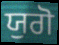
ਯੁਗੋ